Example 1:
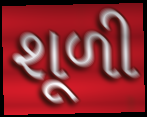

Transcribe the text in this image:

શૂળી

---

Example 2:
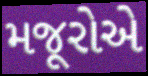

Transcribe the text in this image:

મજૂરોએ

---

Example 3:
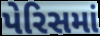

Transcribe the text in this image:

પેરિસમાં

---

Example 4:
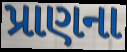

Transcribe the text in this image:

પ્રાણના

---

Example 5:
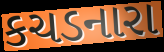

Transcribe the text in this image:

કચડનારા